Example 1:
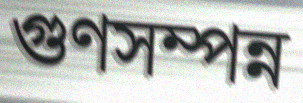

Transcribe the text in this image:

গুণসম্পন্ন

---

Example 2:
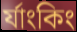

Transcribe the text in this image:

র্যাংকিং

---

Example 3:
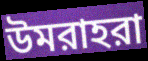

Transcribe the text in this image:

উমরাহরা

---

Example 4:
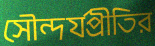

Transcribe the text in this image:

সৌন্দর্যপ্রীতির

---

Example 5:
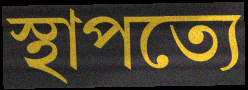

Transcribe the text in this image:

স্থাপত্যে